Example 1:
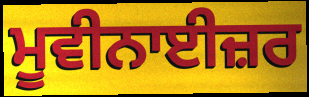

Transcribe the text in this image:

ਮੂਵੀਨਾਈਜ਼ਰ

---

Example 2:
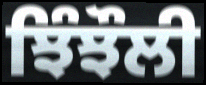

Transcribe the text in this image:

ਝਿੰਝੌਲੀ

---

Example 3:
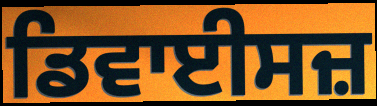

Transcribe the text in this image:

ਡਿਵਾਈਸਜ਼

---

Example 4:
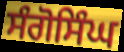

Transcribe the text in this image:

ਸੰਗੋਸਿੰਘ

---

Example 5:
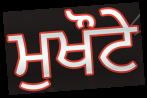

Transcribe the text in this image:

ਮੁਖੌਟੇ